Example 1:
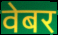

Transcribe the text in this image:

वेबर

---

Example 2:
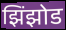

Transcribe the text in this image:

झिंझोड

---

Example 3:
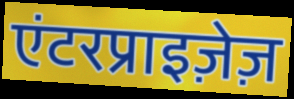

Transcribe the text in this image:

एंटरप्राइज़ेज़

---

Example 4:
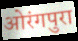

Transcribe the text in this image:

ओरंगपुरा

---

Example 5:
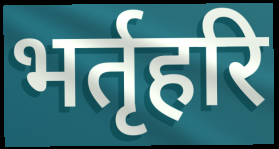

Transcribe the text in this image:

भर्तृहरि